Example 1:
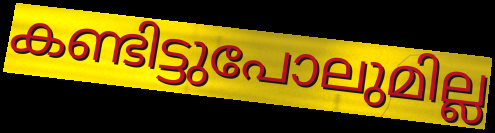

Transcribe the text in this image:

കണ്ടിട്ടുപോലുമില്ല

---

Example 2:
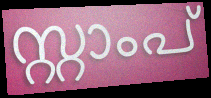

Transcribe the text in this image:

സ്റ്റാംപ്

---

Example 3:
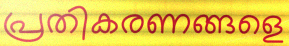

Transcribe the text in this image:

പ്രതികരണങ്ങളെ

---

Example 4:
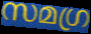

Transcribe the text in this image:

സമഗ്ര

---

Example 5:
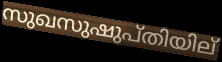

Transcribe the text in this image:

സുഖസുഷുപ്തിയില്